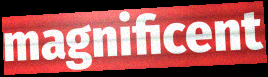
magnificent